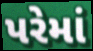
પરેમાં